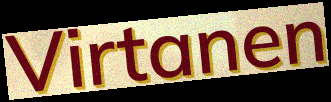
Virtanen